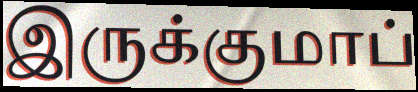
இருக்குமாப்